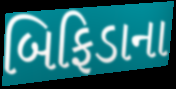
બિફિડાના